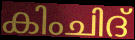
കിംചിദ്